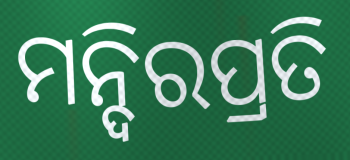
ମନ୍ଦିରପ୍ରତି